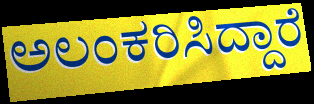
ಅಲಂಕರಿಸಿದ್ದಾರೆ